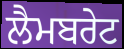
ਲੈਮਬਰੇਟ